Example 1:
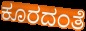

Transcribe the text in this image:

ಕೂರದಂತೆ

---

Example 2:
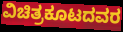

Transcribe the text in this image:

ವಿಚಿತ್ರಕೂಟದವರ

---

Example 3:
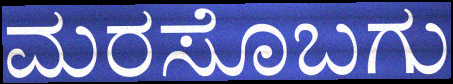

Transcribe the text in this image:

ಮರಸೊಬಗು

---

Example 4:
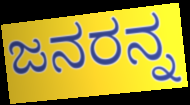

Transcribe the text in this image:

ಜನರನ್ನ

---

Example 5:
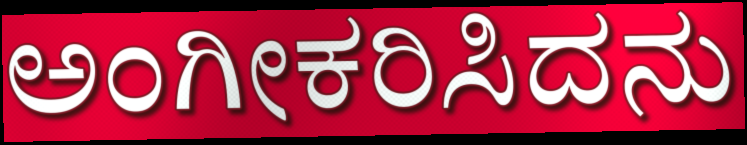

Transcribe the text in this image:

ಅಂಗೀಕರಿಸಿದನು